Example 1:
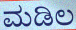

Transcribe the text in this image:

ಮಡಿಲ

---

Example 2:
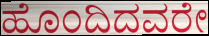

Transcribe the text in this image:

ಹೊಂದಿದವರೇ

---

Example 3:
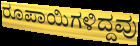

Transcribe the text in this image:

ರೂಪಾಯಿಗಳಿದ್ದವು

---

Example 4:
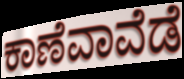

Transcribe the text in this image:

ಕಾಣೆವಾವೆಡೆ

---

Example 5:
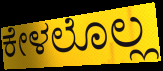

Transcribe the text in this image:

ಕೇಳಲೊಲ್ಲ